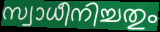
സ്വാധീനിച്ചതും